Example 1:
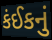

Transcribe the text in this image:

કંઈકનું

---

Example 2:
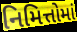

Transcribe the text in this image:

નિમિત્તોમાં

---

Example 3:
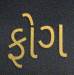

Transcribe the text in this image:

ફોગ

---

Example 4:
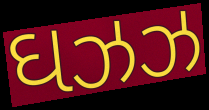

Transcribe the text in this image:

ઘઝઝ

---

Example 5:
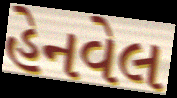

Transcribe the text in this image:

હેનવેલ